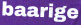
baarige